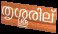
തൃശ്ശൂരില്